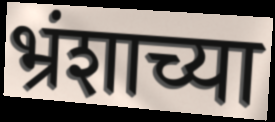
भ्रंशाच्या